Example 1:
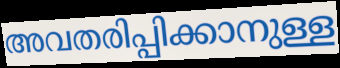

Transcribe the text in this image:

അവതരിപ്പിക്കാനുള്ള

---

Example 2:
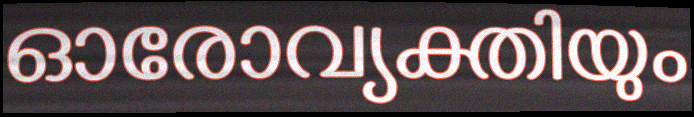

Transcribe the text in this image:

ഓരോവ്യക്തിയും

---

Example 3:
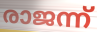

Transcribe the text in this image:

രാജന്ന്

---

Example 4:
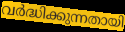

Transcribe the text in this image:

വർദ്ധിക്കുന്നതായി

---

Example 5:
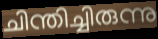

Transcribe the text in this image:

ചിന്തിച്ചിരുന്നു